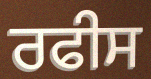
ਰਫੀਸ